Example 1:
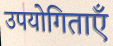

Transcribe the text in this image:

उपयोगिताएँ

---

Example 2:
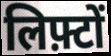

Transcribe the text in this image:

लिफ़्टों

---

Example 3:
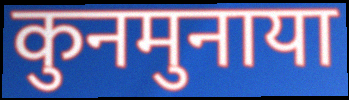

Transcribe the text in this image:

कुनमुनाया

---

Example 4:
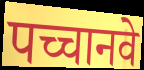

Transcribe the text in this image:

पच्चानवे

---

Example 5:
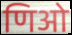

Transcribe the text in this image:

णिओ